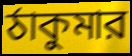
ঠাকুমার